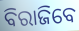
ବିରାଜିବେ